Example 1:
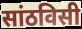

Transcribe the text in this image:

सांठविसी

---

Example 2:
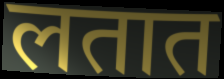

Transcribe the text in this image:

लतात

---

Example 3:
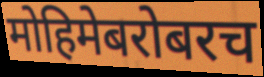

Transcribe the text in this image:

मोहिमेबरोबरच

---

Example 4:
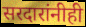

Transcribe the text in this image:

सरदारांनीही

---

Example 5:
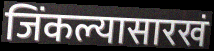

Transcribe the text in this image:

जिंकल्यासारखं